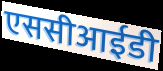
एससीआईडी